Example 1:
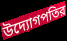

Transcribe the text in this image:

উদ্যোগপতির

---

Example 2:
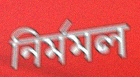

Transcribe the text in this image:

নির্মমল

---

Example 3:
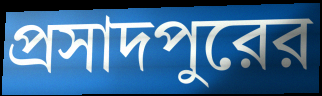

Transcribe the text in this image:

প্রসাদপুরের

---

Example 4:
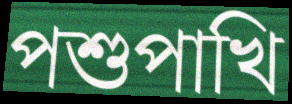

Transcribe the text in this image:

পশুপাখি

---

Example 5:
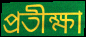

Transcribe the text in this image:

প্রতীক্ষা